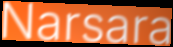
Narsara